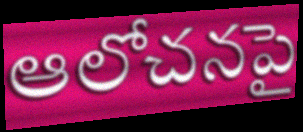
ఆలోచనపై